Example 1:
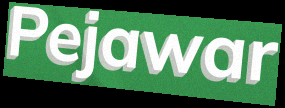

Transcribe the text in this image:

Pejawar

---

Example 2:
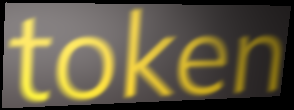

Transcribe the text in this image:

token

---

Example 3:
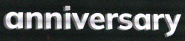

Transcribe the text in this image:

anniversary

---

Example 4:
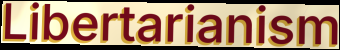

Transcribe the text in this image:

Libertarianism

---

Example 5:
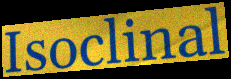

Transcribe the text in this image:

Isoclinal